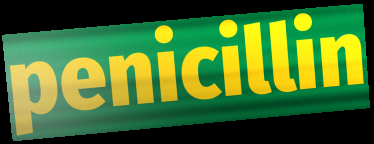
penicillin